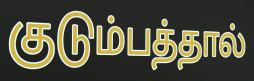
குடும்பத்தால்